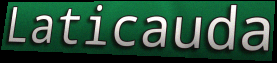
Laticauda